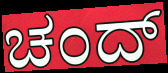
ಚಂದ್